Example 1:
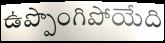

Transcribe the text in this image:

ఉప్పొంగిపోయేది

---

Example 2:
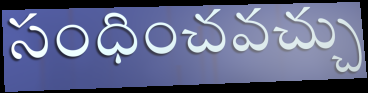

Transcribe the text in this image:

సంధించవచ్చు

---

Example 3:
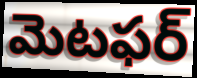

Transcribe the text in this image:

మెటఫర్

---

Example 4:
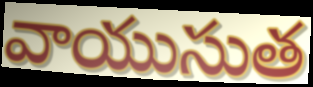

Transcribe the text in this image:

వాయుసుత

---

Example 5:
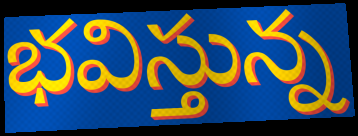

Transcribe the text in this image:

భవిస్తున్న